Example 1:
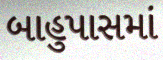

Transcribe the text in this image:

બાહુપાસમાં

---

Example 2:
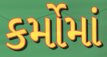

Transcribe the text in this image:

કર્મોમાં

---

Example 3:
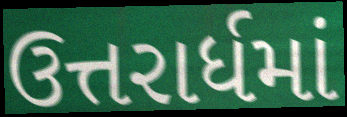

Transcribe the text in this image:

ઉત્તરાર્ધમાં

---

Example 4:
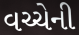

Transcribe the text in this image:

વચ્ચેની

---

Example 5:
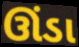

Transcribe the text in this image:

ઊંડા